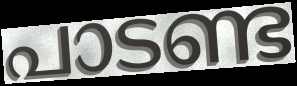
പാടണ്ട